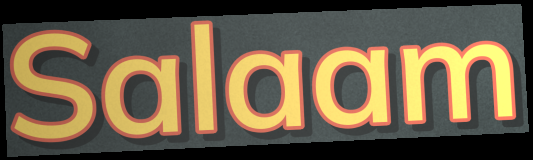
Salaam